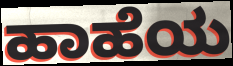
ಹಾಹೆಯ